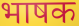
भाषक